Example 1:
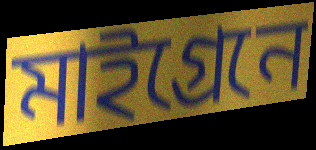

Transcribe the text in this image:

মাইগ্রেনে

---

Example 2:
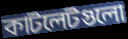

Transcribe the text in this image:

কাটলেটগুলো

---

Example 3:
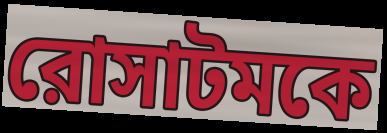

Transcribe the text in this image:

রোসাটমকে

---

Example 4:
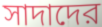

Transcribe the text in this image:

সাদাদের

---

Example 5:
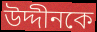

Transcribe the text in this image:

উদ্দীনকে